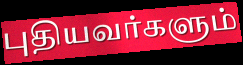
புதியவர்களும்